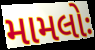
મામલોઃ